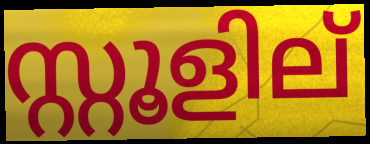
സ്റ്റൂളില്